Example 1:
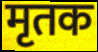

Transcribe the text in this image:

मृतक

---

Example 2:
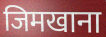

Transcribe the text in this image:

जिमखाना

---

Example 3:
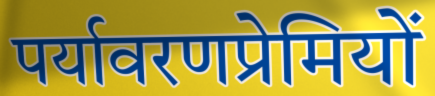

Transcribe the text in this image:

पर्यावरणप्रेमियों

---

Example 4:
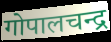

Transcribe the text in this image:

गोपालचन्द्र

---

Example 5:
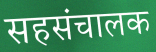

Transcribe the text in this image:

सहसंचालक